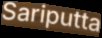
Sariputta